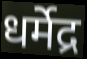
धर्मेद्र